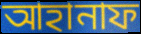
আহানাফ